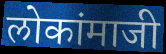
लोकांमाजी